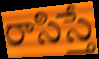
రాసిస్తే